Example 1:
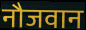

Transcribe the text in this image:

नौजवान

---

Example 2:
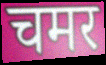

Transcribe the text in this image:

चमर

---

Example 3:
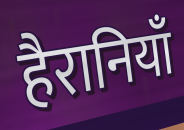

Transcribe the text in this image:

हैरानियाँ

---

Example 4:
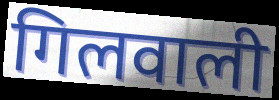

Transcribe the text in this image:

गिलवाली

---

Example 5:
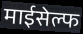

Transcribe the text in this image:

माईसेल्फ